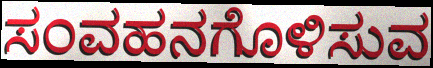
ಸಂವಹನಗೊಳಿಸುವ